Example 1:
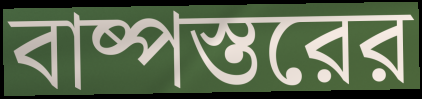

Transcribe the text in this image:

বাষ্পস্তরের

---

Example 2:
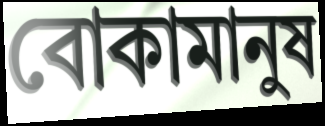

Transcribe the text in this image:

বোকামানুষ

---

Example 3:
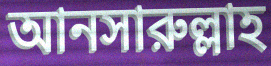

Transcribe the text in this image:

আনসারুল্লাহ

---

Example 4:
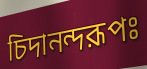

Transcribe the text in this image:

চিদানন্দরূপঃ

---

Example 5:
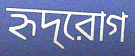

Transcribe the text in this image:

হৃদ্‌রোগ